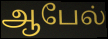
ஆபேல்